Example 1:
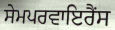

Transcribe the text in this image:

ਸੇਮਪਰਵਾਇਰੈਂਸ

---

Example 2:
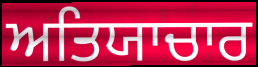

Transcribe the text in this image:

ਅਤਿਯਾਚਾਰ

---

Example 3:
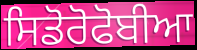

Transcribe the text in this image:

ਸਿਡੋਰੋਫੋਬੀਆ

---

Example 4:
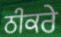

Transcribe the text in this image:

ਠੀਕਰੇ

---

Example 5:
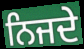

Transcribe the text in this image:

ਨਿਜਦੇ